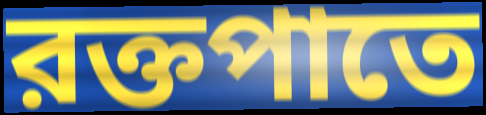
রক্তপাতে